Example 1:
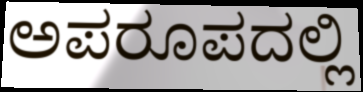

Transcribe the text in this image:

ಅಪರೂಪದಲ್ಲಿ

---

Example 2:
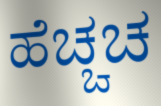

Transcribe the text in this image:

ಹೆಚ್ಚಚ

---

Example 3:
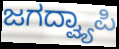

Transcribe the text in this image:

ಜಗದ್ವ್ಯಾಪಿ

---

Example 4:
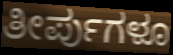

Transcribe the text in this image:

ತೀರ್ಪುಗಳೂ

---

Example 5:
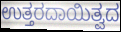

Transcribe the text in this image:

ಉತ್ತರದಾಯಿತ್ವದ